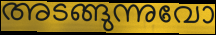
അടങ്ങുന്നുവോ